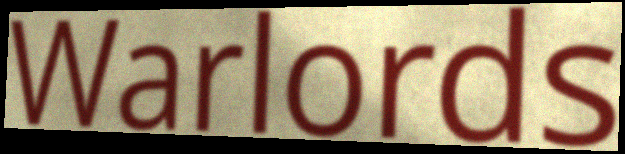
Warlords